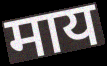
माय